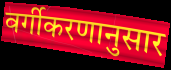
वर्गीकरणानुसार